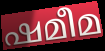
ഷമീമ